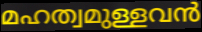
മഹത്വമുള്ളവൻ